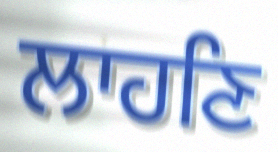
ਲਾਹਣਿ